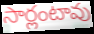
సార్లంటావు